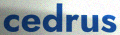
cedrus